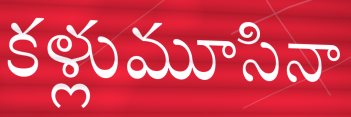
కళ్లుమూసినా